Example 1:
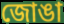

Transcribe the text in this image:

জোঙা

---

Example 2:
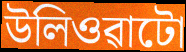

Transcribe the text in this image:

উলিওৱাটো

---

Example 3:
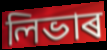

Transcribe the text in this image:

লিভাৰ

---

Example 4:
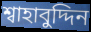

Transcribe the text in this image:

শ্বাহাবুদ্দিন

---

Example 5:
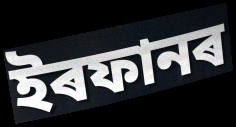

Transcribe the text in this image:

ইৰফানৰ